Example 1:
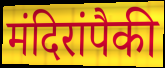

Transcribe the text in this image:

मंदिरांपैकी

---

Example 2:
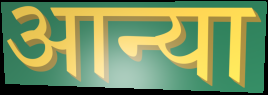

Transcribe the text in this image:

आन्या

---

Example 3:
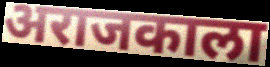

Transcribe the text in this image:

अराजकाला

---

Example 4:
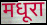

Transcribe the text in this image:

मधूरा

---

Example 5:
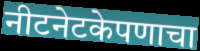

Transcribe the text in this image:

नीटनेटकेपणाचा